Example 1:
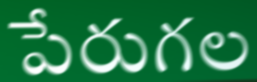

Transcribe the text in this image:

పేరుగల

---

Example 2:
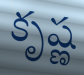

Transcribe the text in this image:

కృష్ణ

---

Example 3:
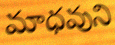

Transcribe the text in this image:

మాధవుని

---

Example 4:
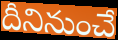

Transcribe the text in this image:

దీనినుంచే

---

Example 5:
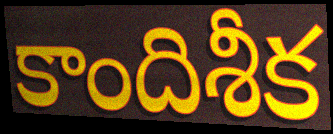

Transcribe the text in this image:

కాందిశీక